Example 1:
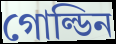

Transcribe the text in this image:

গোল্ডিন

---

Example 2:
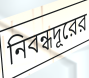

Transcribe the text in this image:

নিবন্ধদূরের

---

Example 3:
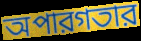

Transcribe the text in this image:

অপারগতার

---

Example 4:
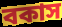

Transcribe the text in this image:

বকাস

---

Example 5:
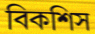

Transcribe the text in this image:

বিকশিস